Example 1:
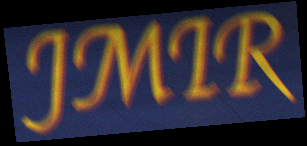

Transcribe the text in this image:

JMIR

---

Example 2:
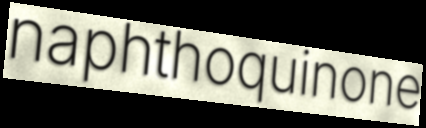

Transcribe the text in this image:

naphthoquinone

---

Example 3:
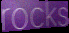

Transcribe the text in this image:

rocks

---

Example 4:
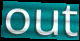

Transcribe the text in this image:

out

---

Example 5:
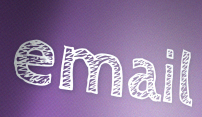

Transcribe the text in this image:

email